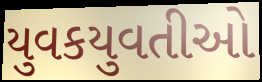
યુવકયુવતીઓ